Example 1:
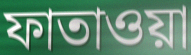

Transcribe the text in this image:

ফাতাওয়া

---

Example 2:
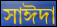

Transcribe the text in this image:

সাঈদা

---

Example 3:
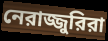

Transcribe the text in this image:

নেরাজ্জুরিরা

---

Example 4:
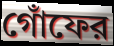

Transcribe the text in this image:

গোঁফের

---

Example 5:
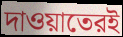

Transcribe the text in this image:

দাওয়াতেরই